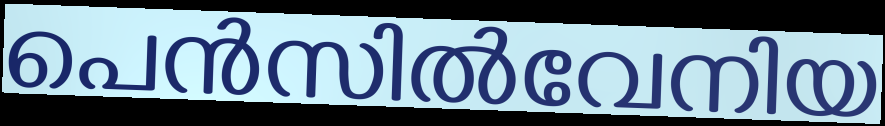
പെൻസിൽവേനിയ